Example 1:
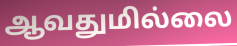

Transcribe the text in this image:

ஆவதுமில்லை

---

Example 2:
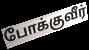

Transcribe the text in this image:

போக்குவீர்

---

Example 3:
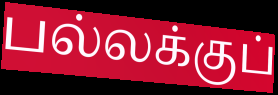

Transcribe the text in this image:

பல்லக்குப்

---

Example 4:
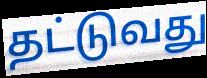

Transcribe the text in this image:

தட்டுவது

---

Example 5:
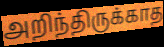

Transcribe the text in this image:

அறிந்திருக்காத